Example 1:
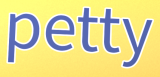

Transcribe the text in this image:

petty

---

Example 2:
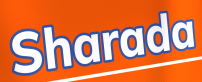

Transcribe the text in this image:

Sharada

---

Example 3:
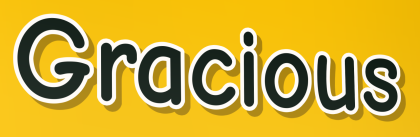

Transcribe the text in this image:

Gracious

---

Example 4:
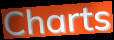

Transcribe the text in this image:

Charts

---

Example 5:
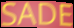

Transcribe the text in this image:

SADE